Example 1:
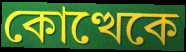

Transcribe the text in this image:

কোত্থেকে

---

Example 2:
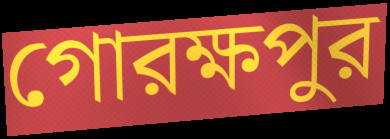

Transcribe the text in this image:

গোরক্ষপুর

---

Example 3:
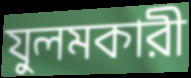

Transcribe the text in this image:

যুলমকারী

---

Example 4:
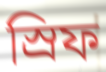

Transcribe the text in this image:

স্রিফ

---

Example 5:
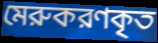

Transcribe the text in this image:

মেরুকরণকৃত